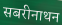
सबरीनाथन